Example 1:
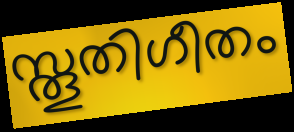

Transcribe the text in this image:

സ്തൂതിഗീതം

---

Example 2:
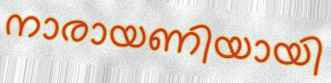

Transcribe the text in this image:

നാരായണിയായി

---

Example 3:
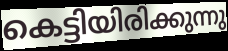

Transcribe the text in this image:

കെട്ടിയിരിക്കുന്നു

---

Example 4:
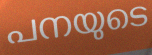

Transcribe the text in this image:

പനയുടെ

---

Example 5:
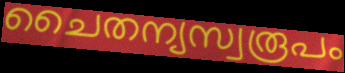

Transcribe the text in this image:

ചൈതന്യസ്വരൂപം